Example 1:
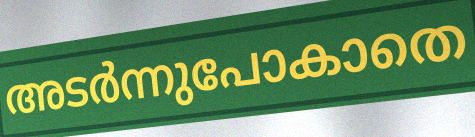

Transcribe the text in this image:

അടർന്നുപോകാതെ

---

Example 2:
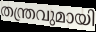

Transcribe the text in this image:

തന്ത്രവുമായി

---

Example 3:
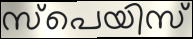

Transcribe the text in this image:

സ്പെയിസ്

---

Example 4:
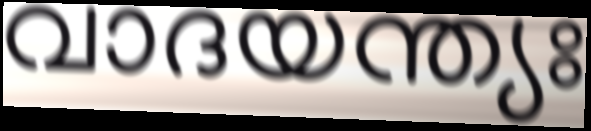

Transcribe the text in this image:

വാദയന്ത്യഃ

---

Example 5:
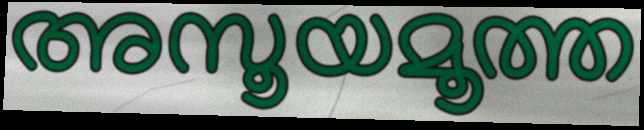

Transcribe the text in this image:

അസൂയമൂത്ത